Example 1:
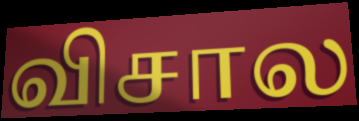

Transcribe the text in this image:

விசால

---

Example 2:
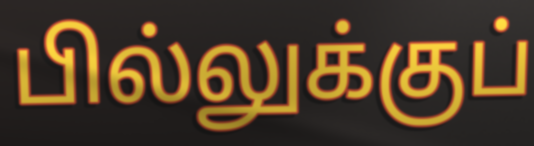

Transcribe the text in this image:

பில்லுக்குப்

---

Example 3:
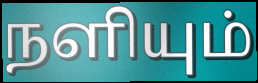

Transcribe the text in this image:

நளியும்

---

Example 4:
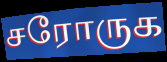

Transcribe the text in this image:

சரோருக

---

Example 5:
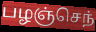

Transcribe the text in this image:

பழஞ்செந்